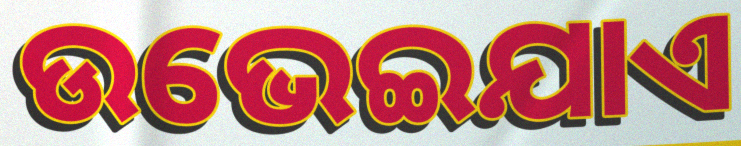
ଉଭେଇଯାଏ